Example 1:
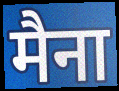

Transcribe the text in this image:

मैना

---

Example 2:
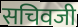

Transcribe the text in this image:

सचिवजी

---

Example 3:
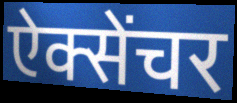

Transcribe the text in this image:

ऐक्सेंचर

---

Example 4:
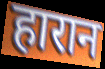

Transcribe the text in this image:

हारान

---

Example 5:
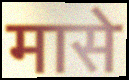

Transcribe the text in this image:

मासे